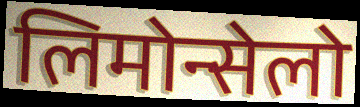
लिमोन्सेलो